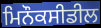
ਮਿਨੌਕਸੀਡੀਲ